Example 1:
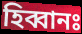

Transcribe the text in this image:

হিব্বানঃ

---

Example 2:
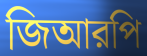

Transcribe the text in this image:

জিআরপি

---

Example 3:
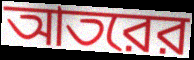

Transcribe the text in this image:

আতরের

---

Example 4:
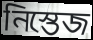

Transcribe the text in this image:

নিস্তেজ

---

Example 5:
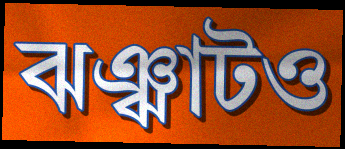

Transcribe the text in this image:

ঝঞ্ঝাটও